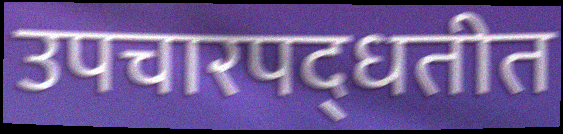
उपचारपद्धतीत